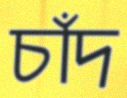
চাঁদ